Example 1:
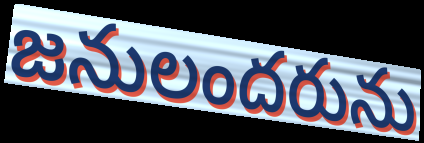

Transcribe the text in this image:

జనులందరును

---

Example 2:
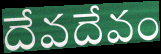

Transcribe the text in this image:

దేవదేవం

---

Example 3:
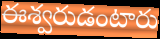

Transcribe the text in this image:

ఈశ్వరుడంటారు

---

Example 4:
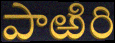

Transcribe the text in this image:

పాఱిరి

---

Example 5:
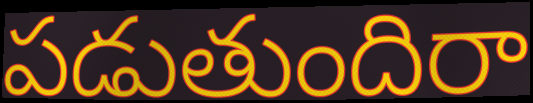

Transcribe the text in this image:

పడుతుందిరా